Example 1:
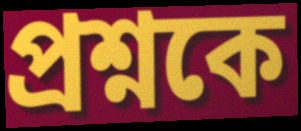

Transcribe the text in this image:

প্রশ্নকে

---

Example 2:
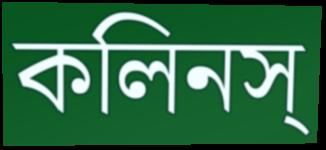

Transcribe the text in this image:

কলিনস্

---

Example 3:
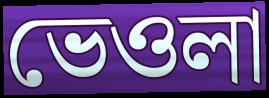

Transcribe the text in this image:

ভেওলা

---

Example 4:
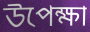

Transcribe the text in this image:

উপেক্ষা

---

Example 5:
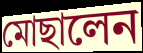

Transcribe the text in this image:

মোছালেন